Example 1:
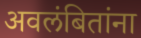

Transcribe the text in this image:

अवलंबितांना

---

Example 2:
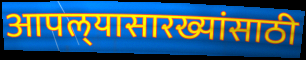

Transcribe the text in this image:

आपल्यासारख्यांसाठी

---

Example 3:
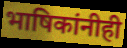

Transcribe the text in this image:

भाषिकांनीही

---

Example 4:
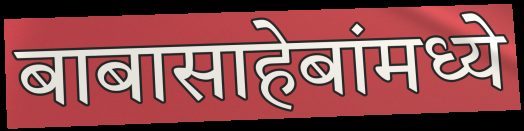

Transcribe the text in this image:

बाबासाहेबांमध्ये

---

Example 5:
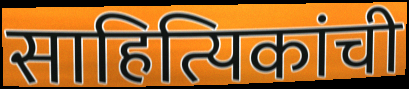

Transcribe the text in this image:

साहित्यिकांची